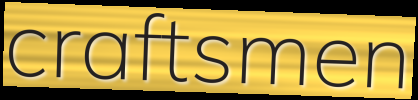
craftsmen